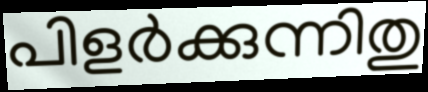
പിളർക്കുന്നിതു